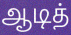
ஆடித்